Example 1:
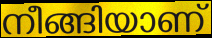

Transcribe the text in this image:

നീങ്ങിയാണ്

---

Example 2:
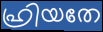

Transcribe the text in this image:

ഹ്രിയതേ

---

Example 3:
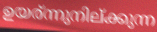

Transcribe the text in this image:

ഉയര്ന്നുനില്ക്കുന്ന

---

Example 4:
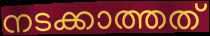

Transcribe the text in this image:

നടക്കാത്തത്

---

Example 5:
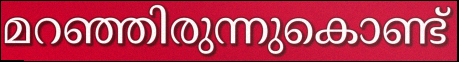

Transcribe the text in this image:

മറഞ്ഞിരുന്നുകൊണ്ട്